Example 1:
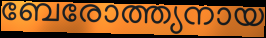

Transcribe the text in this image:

ബേരോത്ത്യനായ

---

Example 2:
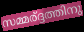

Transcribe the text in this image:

സമ്മര്ദ്ദത്തിനു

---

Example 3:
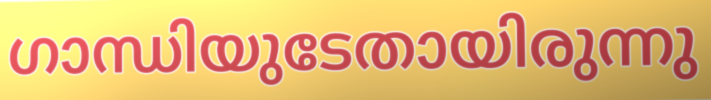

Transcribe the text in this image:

ഗാന്ധിയുടേതായിരുന്നു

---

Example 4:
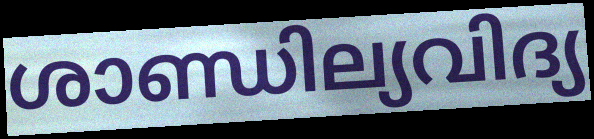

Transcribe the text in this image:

ശാണ്ഡില്യവിദ്യ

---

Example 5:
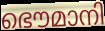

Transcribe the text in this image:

ഭൌമാനി